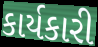
કાર્યકારી